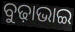
ବୁଢ଼ାଭାଇ